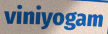
viniyogam